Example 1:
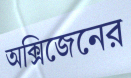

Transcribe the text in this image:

অক্সিজেনের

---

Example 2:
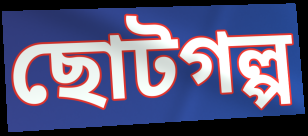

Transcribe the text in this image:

ছোটগল্প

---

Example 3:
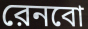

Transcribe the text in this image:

রেনবো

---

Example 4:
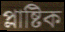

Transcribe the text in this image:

প্লাষ্টিক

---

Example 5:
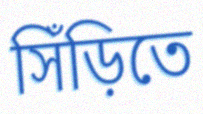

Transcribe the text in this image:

সিঁড়িতে